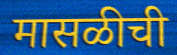
मासळीची